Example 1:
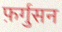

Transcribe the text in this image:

फ़र्गुसन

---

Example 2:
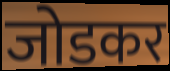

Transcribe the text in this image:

जोडकर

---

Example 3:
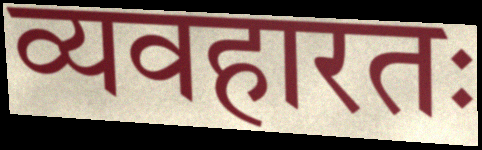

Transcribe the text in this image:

व्यवहारतः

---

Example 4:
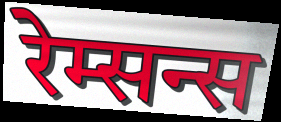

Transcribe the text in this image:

रेम्सन्स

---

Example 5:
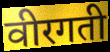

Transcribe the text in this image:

वीरगती